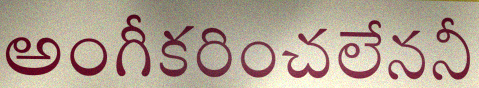
అంగీకరించలేననీ